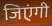
जिएंगी